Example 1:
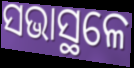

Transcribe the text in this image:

ସଭାସ୍ଥଳେ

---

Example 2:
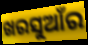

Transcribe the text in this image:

ଖରସୁଆଁର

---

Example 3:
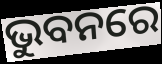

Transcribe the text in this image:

ଭୁବନରେ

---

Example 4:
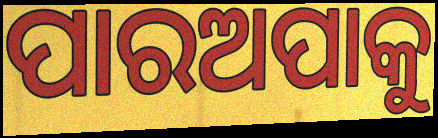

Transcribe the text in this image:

ପାରଅପାକୁ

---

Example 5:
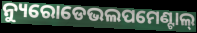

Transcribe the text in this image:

ନ୍ୟୁରୋଡେଭଲପମେଣ୍ଟାଲ୍